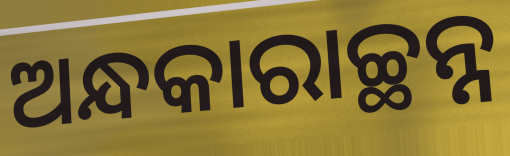
ଅନ୍ଧକାରାଚ୍ଛନ୍ନ